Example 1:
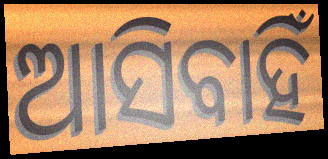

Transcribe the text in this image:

ଆସିବାହିଁ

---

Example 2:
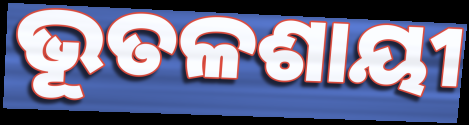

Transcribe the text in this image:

ଭୂତଳଶାୟୀ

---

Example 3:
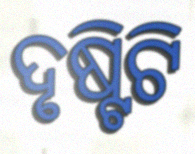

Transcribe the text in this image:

ଦୃଷ୍ଟିଟି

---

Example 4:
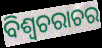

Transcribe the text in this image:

ବିଶ୍ଵଚରାଚର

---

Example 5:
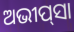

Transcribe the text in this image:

ଅଭୀପ୍‌ସା